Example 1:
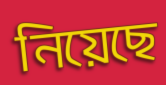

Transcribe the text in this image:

নিয়েছে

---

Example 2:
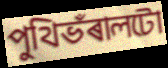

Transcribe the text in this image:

পুথিভঁৰালটো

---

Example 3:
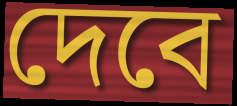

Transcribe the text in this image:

দেবে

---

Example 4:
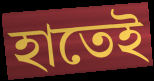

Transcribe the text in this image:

হাতেই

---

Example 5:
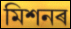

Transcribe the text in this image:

মিশনৰ